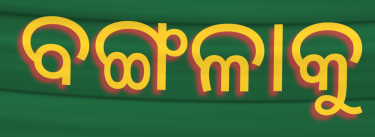
ବଙ୍ଗଳାକୁ